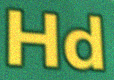
Hd